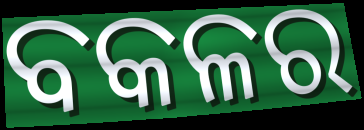
ବକଳର